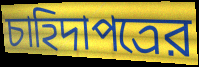
চাহিদাপত্রের